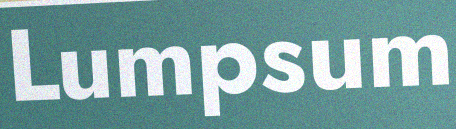
Lumpsum